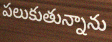
పలుకుతున్నాను